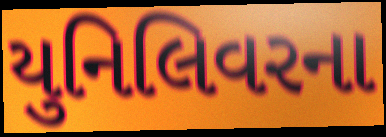
યુનિલિવરના